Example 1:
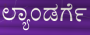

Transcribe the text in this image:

ಲ್ಯಾಂಡರ್ಗೆ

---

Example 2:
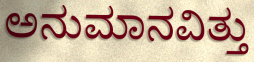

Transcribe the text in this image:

ಅನುಮಾನವಿತ್ತು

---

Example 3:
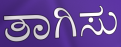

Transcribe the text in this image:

ತಾಗಿಸು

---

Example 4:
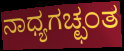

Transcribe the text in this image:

ನಾಧ್ಯಗಚ್ಛಂತ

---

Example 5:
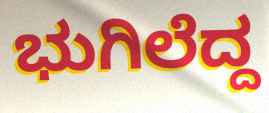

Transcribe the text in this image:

ಭುಗಿಲೆದ್ದ